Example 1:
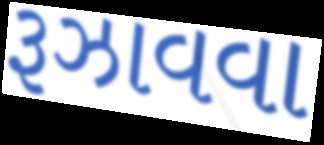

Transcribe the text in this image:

રૂઝાવવા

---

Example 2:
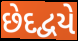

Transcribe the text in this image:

છેદદ્વયે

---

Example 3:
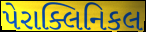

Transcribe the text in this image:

પેરાક્લિનિકલ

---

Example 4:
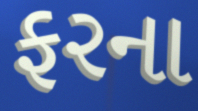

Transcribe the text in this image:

ફરના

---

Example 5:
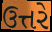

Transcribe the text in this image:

ઉત્તરે